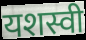
यशस्वी